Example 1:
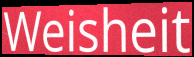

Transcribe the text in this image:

Weisheit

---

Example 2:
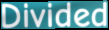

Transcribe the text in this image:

Divided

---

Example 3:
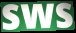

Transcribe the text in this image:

sws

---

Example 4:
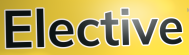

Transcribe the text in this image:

Elective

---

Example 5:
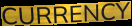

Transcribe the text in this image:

CURRENCY